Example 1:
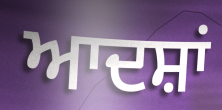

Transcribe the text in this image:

ਆਦਸ਼ਾਂ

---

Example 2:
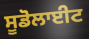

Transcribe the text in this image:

ਸੂਡੋਲਾਈਟ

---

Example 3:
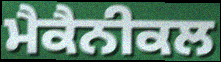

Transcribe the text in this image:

ਮੈਕੈਨੀਕਲ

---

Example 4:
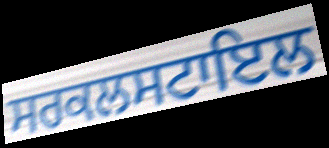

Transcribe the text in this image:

ਸਰਕਲਸਟਾਇਲ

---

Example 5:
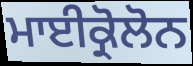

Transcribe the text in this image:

ਮਾਈਕ੍ਰੋਲੋਨ